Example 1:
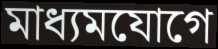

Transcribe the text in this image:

মাধ্যমযোগে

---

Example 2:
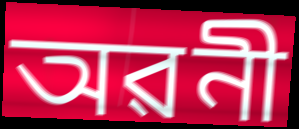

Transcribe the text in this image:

অৱনী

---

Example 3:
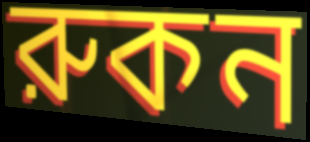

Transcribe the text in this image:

ৰুকন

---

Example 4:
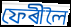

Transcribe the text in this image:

ফেৰীলৈ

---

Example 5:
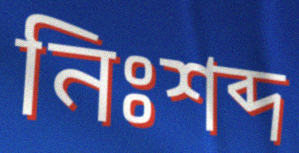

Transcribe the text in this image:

নিঃশব্দ